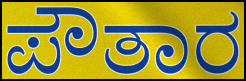
ಪೌತಾರ